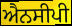
ਐਨਸੀਪੀ